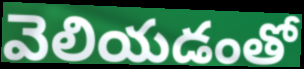
వెలియడంతో